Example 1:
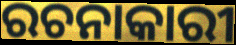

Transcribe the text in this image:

ରଚନାକାରୀ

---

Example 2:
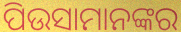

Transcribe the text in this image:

ପିଉସାମାନଙ୍କର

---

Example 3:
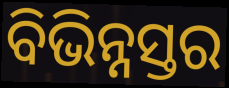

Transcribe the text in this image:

ବିଭିନ୍ନସ୍ତର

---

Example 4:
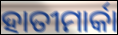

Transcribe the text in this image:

ହାତୀମାର୍କା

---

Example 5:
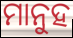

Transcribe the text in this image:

ମାନୁହ